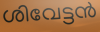
ശിവേട്ടൻ